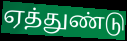
ஏத்துண்டு